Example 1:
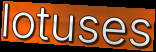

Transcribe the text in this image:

lotuses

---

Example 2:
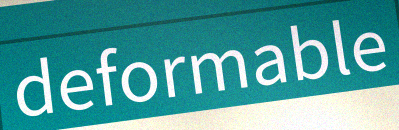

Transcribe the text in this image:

deformable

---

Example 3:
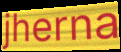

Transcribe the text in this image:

jherna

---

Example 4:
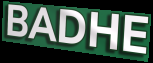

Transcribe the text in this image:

BADHE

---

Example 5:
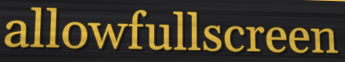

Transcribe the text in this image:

allowfullscreen